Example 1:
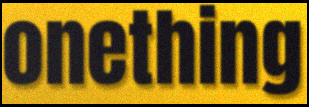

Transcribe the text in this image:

onething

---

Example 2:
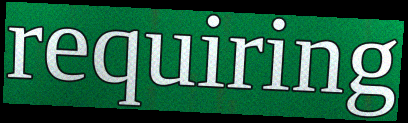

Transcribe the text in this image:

requiring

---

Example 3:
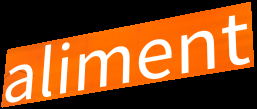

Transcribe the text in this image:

aliment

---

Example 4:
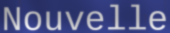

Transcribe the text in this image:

Nouvelle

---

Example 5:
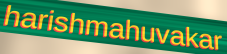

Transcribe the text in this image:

harishmahuvakar